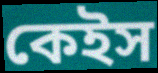
কেইস